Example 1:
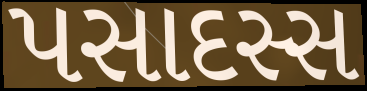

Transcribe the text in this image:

પસાદસ્સ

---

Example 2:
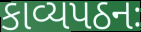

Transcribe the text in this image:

કાવ્યપઠનઃ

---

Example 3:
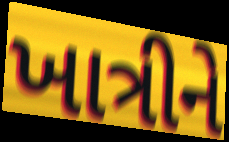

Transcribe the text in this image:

ખાત્રીને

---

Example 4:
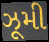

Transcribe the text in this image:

ઝૂમી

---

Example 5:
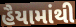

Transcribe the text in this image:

હૈયામાંથી